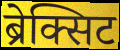
ब्रेक्सिट